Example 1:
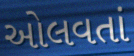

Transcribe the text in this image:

ઓલવતાં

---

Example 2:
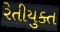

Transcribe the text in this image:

રેતીયુક્ત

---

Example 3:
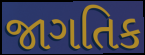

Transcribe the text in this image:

જાગતિક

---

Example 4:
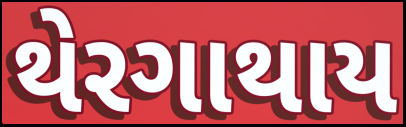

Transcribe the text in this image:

થેરગાથાય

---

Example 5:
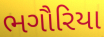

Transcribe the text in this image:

ભગૌરિયા